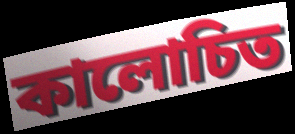
কালোচিত